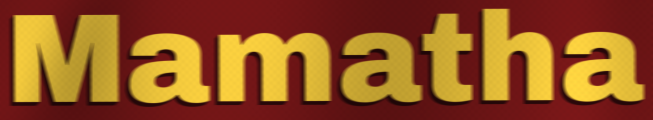
Mamatha